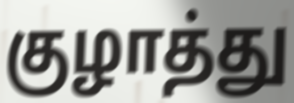
குழாத்து